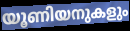
യൂണിയനുകളും